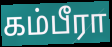
கம்பீரா